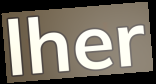
lher